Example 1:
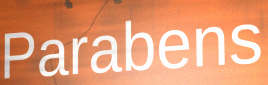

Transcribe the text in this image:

Parabens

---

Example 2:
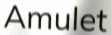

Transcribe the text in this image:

Amulet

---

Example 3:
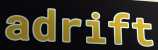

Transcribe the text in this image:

adrift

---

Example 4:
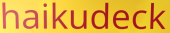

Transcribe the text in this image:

haikudeck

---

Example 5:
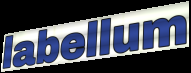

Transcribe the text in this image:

labellum